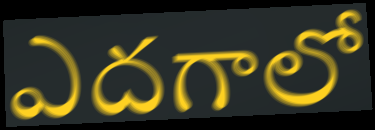
ఎదగాలో